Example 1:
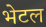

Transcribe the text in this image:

भेटल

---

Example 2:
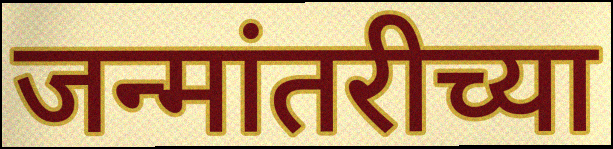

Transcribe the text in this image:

जन्मांतरीच्या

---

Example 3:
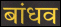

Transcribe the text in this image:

बांधव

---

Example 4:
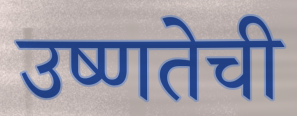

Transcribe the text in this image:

उष्णतेची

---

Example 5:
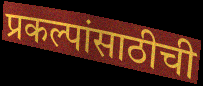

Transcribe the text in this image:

प्रकल्पांसाठीची